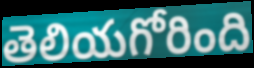
తెలియగోరింది